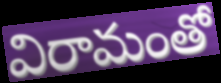
విరామంతో